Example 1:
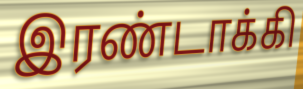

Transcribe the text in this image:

இரண்டாக்கி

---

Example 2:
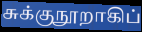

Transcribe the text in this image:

சுக்குநூறாகிப்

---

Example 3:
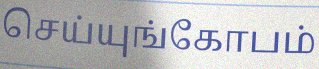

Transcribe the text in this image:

செய்யுங்கோபம்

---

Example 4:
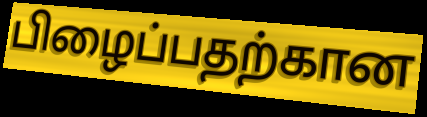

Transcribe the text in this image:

பிழைப்பதற்கான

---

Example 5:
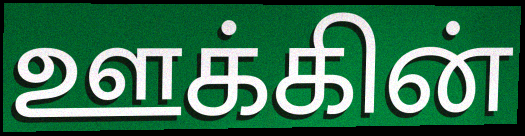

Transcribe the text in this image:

ஊக்கின்